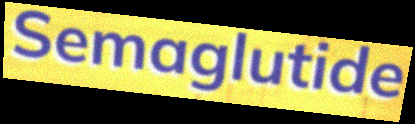
Semaglutide